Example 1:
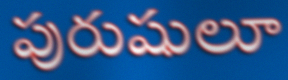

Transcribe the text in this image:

పురుషులూ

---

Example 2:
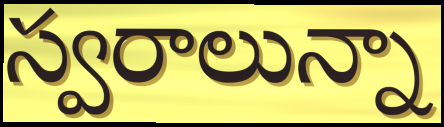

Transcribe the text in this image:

స్వరాలున్నా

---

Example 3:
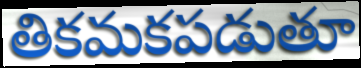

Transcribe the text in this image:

తికమకపడుతూ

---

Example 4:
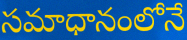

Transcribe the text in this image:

సమాధానంలోనే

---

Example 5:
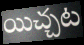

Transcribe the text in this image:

యిచ్చట